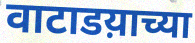
वाटाडय़ाच्या